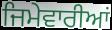
ਜਿਮੇਵਾਰੀਆਂ